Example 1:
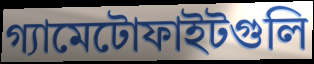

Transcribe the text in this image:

গ্যামেটোফাইটগুলি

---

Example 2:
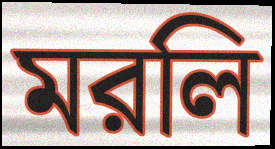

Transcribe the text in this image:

মরলি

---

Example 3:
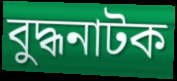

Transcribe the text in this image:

বুদ্ধনাটক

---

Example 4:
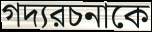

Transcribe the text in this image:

গদ্যরচনাকে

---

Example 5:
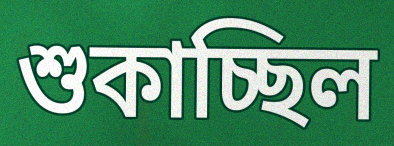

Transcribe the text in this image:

শুকাচ্ছিল